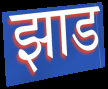
झाड